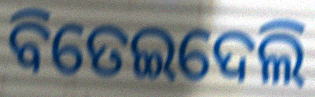
ବିତେଇଦେଲି